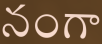
నంగా